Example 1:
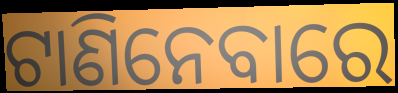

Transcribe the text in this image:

ଟାଣିନେବାରେ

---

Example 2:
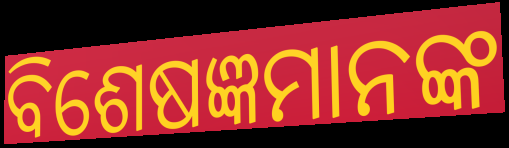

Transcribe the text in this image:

ବିଶେଷଜ୍ଞମାନଙ୍କ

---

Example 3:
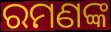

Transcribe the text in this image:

ରମଣଙ୍କ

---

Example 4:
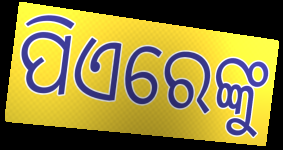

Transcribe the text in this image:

ପିଏରେଙ୍କୁ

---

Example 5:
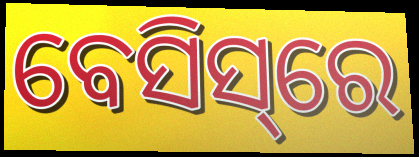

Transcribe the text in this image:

ବେସିସ୍‌ରେ